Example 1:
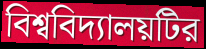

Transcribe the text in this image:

বিশ্ববিদ্যালয়টির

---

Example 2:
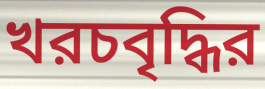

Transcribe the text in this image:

খরচবৃদ্ধির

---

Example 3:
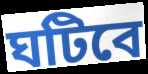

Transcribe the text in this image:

ঘটিবে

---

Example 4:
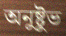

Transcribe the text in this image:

অনুষ্টুভ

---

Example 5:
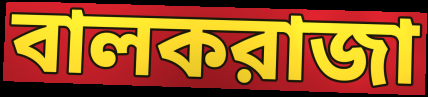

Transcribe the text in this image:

বালকরাজা